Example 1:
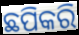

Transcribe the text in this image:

ଛପିକରି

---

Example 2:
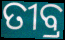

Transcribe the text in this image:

ତୀବ୍ର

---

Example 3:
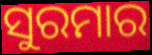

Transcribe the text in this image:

ସୁରମାର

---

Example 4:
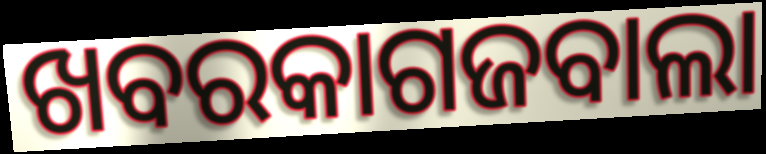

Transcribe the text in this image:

ଖବରକାଗଜବାଲା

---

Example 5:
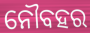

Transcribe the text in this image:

ନୌବହର